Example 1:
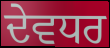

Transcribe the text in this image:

ਦੇਵਧਰ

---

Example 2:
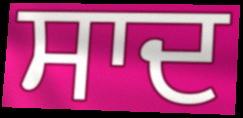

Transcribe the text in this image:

ਸਾਦ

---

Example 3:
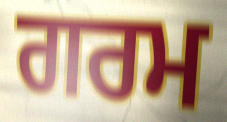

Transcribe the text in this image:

ਗਰਮ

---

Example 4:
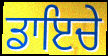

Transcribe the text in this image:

ਡਾਇਚੇ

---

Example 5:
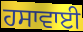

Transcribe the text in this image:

ਹਸਾਵਾਈ